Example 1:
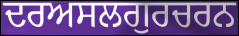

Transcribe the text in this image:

ਦਰਅਸਲਗੁਰਚਰਨ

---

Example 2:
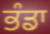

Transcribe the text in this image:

ਭੰਡਾ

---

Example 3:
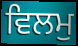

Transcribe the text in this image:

ਵਿਲਮੁ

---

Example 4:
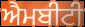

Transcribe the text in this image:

ਐਮਬੀਟੀ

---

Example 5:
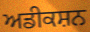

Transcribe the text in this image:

ਅਡੀਕਸ਼ਨ